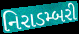
નિરાડમ્બરી